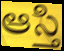
ఆస్తి